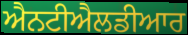
ਐਨਟੀਐਲਡੀਆਰ